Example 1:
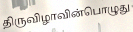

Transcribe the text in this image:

திருவிழாவின்பொழுது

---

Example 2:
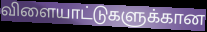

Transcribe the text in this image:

விளையாட்டுகளுக்கான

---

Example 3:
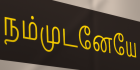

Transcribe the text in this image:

நம்முடனேயே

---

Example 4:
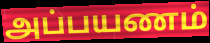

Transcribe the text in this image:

அப்பயணம்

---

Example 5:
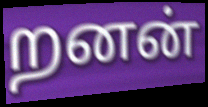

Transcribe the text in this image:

றனன்